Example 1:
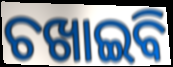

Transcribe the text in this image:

ଚଖାଇବି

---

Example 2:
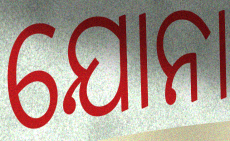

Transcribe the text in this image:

ଯୋନା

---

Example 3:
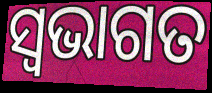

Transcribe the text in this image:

ସ୍ଵଭାଗତ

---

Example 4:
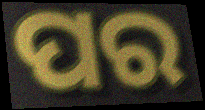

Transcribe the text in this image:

ପର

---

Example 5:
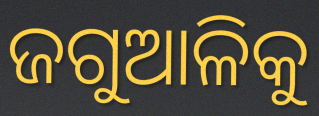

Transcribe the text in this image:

ଜଗୁଆଳିକୁ